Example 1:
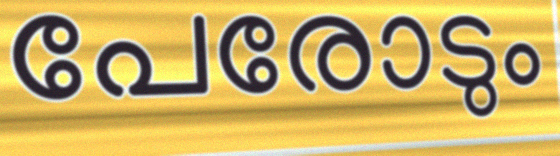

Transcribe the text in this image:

പേരോടും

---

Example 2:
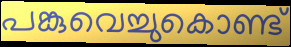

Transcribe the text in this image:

പങ്കുവെച്ചുകൊണ്ട്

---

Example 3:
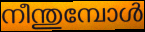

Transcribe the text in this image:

നീന്തുമ്പോൾ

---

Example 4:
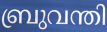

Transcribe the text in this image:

ബ്രുവന്തി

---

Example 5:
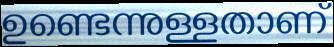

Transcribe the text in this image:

ഉണ്ടെന്നുള്ളതാണ്